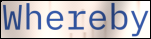
Whereby